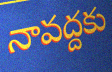
నావద్దకు